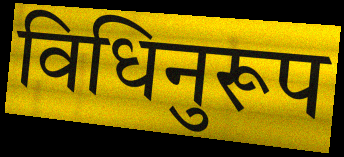
विधिनुरूप